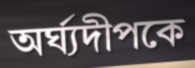
অর্ঘ্যদীপকে